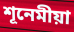
শূনেমীয়া